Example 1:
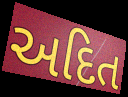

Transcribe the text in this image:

અદિત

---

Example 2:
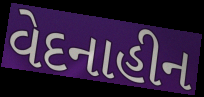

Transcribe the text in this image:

વેદનાહીન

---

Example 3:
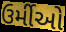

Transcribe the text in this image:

ઉર્મીઓ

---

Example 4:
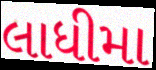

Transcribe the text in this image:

લાધીમા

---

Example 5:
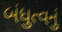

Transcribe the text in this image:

બંધુત્વનું